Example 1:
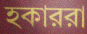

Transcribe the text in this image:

হকাররা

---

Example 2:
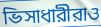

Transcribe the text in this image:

ভিসাধারীরাও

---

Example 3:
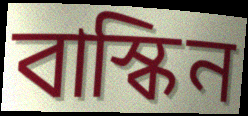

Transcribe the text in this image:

বাস্কিন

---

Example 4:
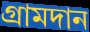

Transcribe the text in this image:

গ্রামদান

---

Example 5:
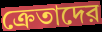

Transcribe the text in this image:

ক্রেতাদের